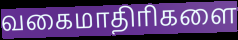
வகைமாதிரிகளை